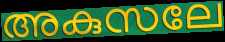
അകുസലേ